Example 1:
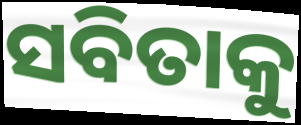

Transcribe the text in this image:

ସବିତାକୁ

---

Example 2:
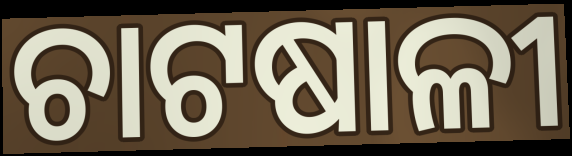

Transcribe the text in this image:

ଚାଟଷାଳୀ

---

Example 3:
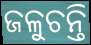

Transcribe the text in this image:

ଜଳୁଚନ୍ତି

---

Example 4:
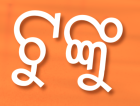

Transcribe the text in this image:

ଟୁଙ୍କୁ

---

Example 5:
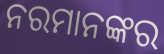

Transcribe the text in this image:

ନରମାନଙ୍କର